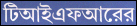
টিআইএফআরের